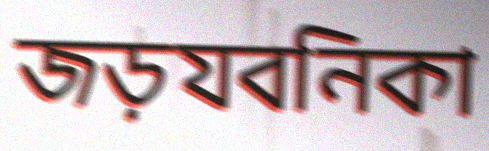
জড়যবনিকা